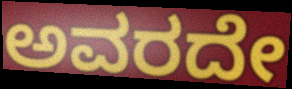
ಅವರದೇ